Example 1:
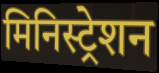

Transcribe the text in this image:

मिनिस्ट्रेशन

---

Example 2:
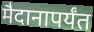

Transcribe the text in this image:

मैदानापर्यंत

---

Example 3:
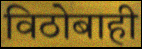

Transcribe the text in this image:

विठोबाही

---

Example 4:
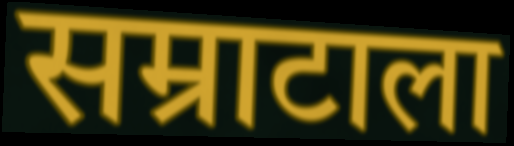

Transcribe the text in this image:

सम्राटाला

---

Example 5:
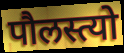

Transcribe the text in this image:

पौलस्त्यो